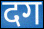
दग